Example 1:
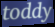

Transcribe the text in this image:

toddy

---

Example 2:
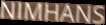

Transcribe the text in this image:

NIMHANS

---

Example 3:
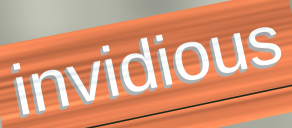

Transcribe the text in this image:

invidious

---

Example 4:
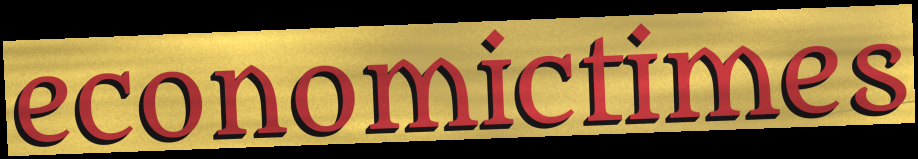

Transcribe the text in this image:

economictimes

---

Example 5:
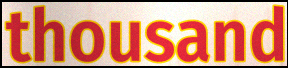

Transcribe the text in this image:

thousand